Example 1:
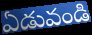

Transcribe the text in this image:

ఏడువండి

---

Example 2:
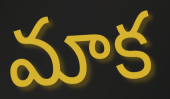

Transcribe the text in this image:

మాక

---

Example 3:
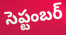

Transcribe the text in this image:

సెప్టంబర్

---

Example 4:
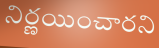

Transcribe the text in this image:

నిర్ణయించారని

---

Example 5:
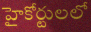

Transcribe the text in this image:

హైకోర్టులలో